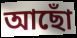
আছোঁ